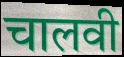
चालवी